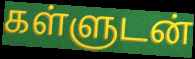
கள்ளுடன்